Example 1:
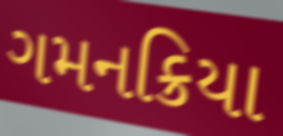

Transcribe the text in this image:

ગમનક્રિયા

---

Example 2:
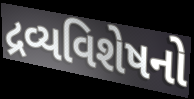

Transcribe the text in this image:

દ્રવ્યવિશેષનો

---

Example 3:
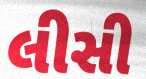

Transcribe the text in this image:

લીસી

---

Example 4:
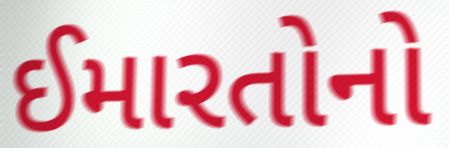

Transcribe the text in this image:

ઈમારતોનો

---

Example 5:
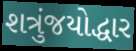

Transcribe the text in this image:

શત્રુંજયોદ્ધાર